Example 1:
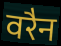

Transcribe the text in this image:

वरैन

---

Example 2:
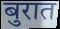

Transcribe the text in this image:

बुरात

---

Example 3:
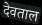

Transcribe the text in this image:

देवताल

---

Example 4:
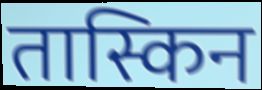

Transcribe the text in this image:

तास्किन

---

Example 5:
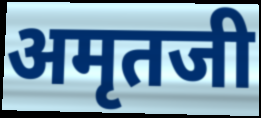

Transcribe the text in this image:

अमृतजी